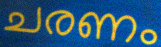
ചരണം